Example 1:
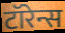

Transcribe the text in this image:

टॉरेन्स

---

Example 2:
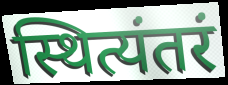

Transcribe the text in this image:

स्थित्यंतरं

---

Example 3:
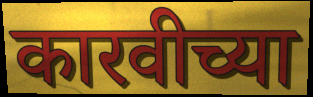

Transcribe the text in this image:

कारवीच्या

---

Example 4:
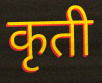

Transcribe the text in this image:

कृती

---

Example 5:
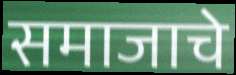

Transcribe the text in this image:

समाजाचे